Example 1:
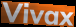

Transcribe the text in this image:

Vivax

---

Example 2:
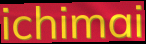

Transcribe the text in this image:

ichimai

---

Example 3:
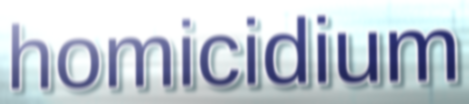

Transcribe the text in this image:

homicidium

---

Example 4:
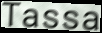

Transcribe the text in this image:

Tassa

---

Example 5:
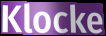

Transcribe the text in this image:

Klocke